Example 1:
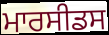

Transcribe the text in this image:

ਮਾਰਸੀਡਸ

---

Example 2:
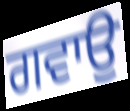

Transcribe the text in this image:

ਗਵਾਉ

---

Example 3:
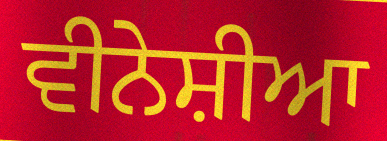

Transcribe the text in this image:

ਵੀਨੇਸ਼ੀਆ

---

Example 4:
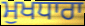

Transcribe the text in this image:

ਮੁਖਧਾਰਾ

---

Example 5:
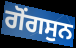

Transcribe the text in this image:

ਗੋਂਗਸੁਨ